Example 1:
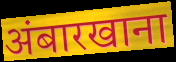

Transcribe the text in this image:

अंबारखाना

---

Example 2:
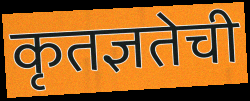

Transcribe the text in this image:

कृतज्ञतेची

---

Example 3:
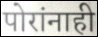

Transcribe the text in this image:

पोरांनाही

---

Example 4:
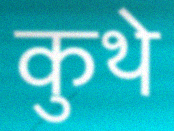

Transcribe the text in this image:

कुथे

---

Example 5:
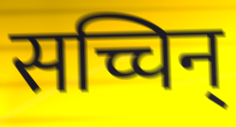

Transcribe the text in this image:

सच्चिन्